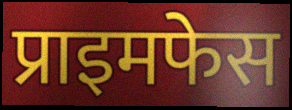
प्राइमफेस